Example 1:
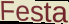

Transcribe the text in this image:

Festa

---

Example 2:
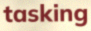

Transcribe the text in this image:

tasking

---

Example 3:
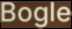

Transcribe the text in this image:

Bogle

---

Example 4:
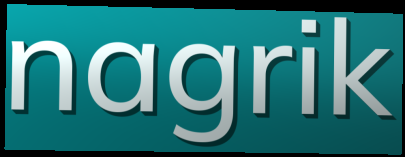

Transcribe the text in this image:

nagrik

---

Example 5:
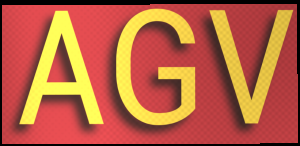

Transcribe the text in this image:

AGV